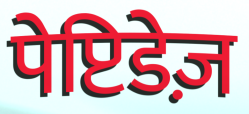
पेप्टिडेज़